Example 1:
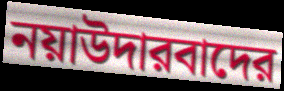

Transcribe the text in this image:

নয়াউদারবাদের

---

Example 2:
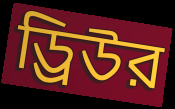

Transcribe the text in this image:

ড্রিউর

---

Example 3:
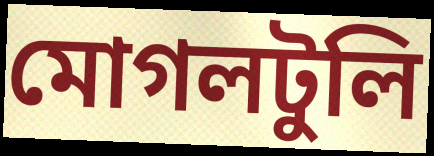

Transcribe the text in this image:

মোগলটুলি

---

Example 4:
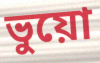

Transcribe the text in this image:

ভুয়ো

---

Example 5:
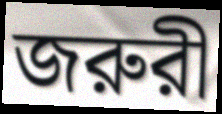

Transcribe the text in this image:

জরুরী